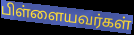
பிள்ளையவர்கள்